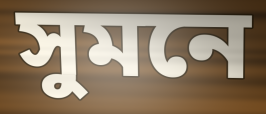
সুমনে